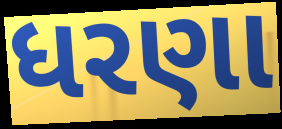
ધરણા